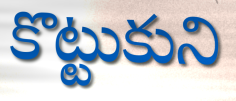
కొట్టుకుని